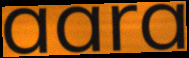
aara